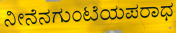
ನೀನೆನಗುಂಟೆಯಪರಾಧ